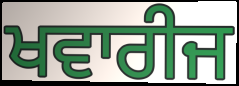
ਖਵਾਰੀਜ